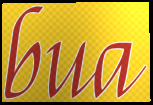
bua